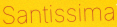
Santissima